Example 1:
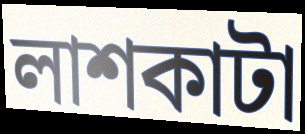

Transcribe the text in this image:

লাশকাটা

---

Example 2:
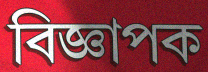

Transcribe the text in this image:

বিজ্ঞাপক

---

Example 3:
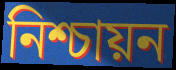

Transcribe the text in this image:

নিশ্চায়ন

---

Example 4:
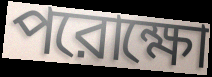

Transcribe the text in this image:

পরোক্ষো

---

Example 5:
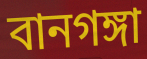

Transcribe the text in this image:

বানগঙ্গা